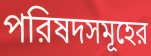
পরিষদসমূহের